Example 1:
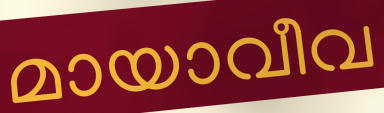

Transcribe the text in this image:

മായാവീവ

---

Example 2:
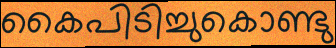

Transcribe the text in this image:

കൈപിടിച്ചുകൊണ്ടു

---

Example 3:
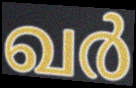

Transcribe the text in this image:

ഖർ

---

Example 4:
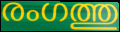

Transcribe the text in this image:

രംഗത്തു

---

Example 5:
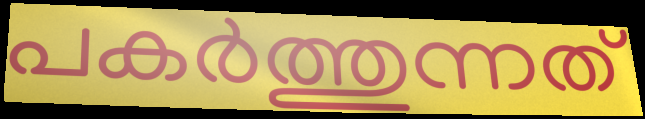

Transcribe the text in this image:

പകർത്തുന്നത്